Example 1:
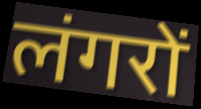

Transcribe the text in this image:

लंगरों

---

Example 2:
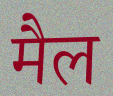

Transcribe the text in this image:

मैल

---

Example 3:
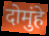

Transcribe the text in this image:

दोमुंहे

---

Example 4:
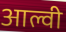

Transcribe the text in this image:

आल्वी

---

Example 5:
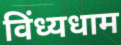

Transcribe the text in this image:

विंध्यधाम